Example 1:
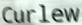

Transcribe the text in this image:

Curlew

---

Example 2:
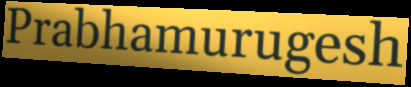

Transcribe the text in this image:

Prabhamurugesh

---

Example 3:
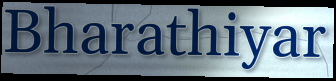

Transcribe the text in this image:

Bharathiyar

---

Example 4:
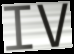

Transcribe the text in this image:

IV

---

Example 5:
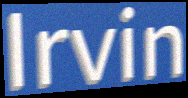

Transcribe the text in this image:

Irvin